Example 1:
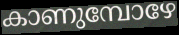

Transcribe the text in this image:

കാണുമ്പോഴേ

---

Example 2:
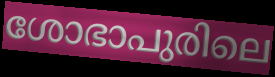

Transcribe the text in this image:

ശോഭാപുരിലെ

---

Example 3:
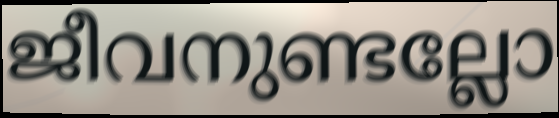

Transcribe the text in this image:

ജീവനുണ്ടല്ലോ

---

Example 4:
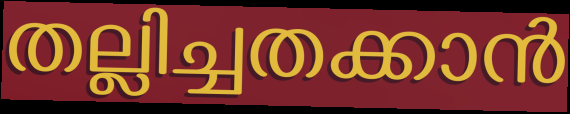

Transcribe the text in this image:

തല്ലിച്ചതക്കാൻ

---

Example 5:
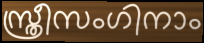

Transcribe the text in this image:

സ്ത്രീസംഗിനാം